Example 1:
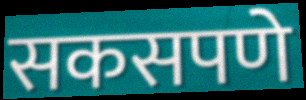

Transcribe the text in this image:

सकसपणे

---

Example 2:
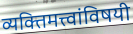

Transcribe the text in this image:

व्यक्तिमत्त्वांविषयी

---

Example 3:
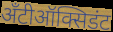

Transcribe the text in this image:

अँटीऑक्सिडंट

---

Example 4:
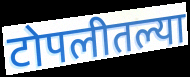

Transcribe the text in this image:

टोपलीतल्या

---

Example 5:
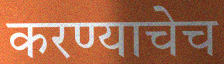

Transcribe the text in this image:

करण्याचेच